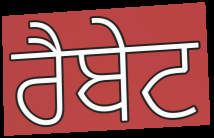
ਰੈਬੇਟ